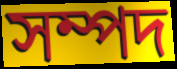
সম্পদ